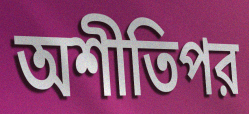
অশীতিপর